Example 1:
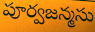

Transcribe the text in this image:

పూర్వజన్మసు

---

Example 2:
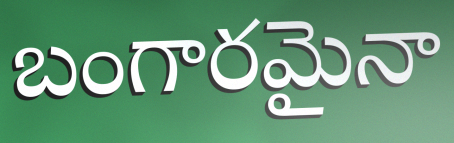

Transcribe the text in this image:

బంగారమైనా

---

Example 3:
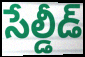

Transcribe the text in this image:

సేల్డీడ్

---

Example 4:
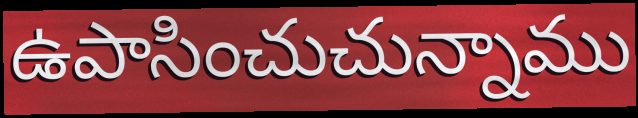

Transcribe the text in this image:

ఉపాసించుచున్నాము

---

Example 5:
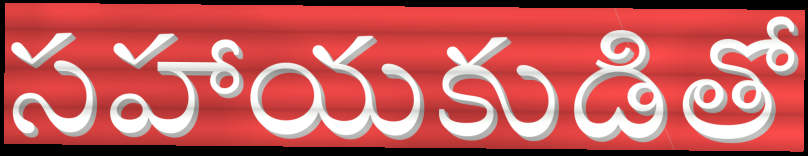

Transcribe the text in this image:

సహాయకుడితో